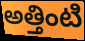
అత్తింటి